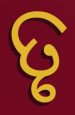
ତୃ